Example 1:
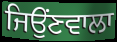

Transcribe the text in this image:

ਜਿਉਂਣਵਾਲਾ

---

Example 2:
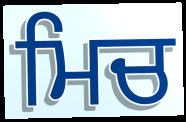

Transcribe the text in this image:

ਮਿਚ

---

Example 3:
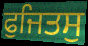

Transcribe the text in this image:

ਫੁਜਿਤਸੁ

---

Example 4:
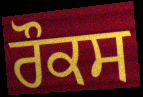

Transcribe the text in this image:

ਰੌਕਸ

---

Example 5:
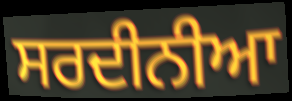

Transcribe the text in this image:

ਸਰਦੀਨੀਆ